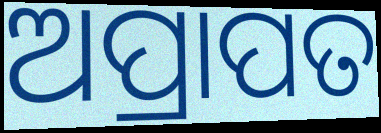
ଅପ୍ରାପତ